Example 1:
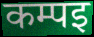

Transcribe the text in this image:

कम्पइ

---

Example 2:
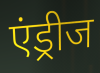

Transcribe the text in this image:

एंड्रीज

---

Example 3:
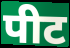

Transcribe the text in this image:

पीट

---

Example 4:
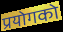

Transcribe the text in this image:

प्रयोगको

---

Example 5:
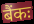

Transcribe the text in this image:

बैंकः